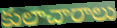
కులాచారాలు